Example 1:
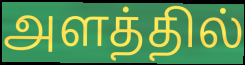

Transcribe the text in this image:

அளத்தில்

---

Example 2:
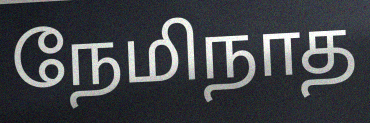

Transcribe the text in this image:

நேமிநாத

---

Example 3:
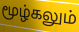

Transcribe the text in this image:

மூழ்கலும்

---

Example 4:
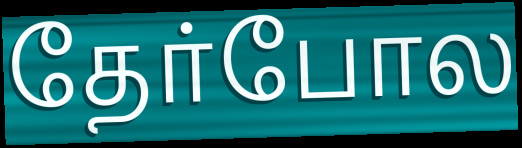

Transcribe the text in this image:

தேர்போல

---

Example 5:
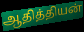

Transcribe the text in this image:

ஆதித்தியன்